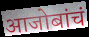
आजोबांचं